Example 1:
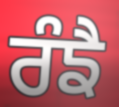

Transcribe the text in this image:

ਰੰਙੈ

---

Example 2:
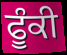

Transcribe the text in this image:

ਫੂੰਕੀ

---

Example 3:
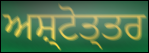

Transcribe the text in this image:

ਅਸ਼੍ਟੋਤ੍ਤਰ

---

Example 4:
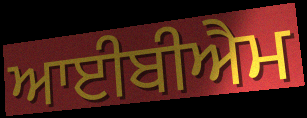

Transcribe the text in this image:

ਆਈਬੀਐਮ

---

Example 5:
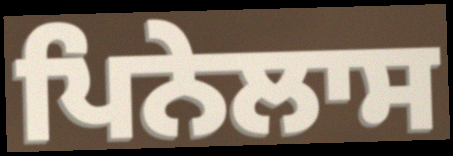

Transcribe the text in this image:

ਪਿਨੇਲਾਸ